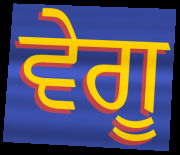
ਵੇਗੂ